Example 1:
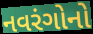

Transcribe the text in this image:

નવરંગોનો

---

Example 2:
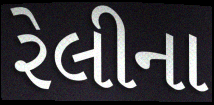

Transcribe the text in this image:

રેલીના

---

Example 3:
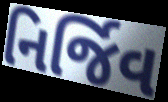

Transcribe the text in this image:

નિર્જિવ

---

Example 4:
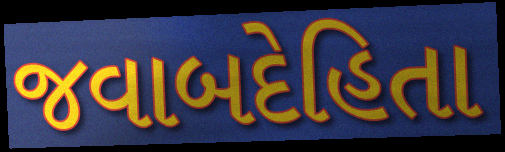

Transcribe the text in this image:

જવાબદેહિતા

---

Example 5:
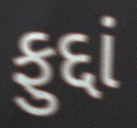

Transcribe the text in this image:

ફુદ્દાં